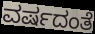
ವರ್ಷದಂತೆ